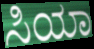
ಸಿಯಾ